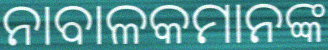
ନାବାଳକମାନଙ୍କ